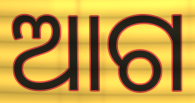
ଆଗ